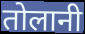
तोलानी